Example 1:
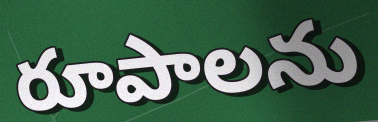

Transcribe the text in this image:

రూపాలను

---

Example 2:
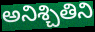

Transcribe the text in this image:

అనిశ్చితిని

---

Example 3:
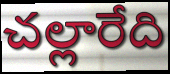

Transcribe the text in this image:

చల్లారేది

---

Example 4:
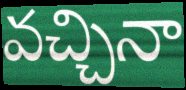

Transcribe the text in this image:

వచ్చినా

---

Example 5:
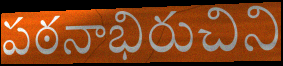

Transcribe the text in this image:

పఠనాభిరుచిని